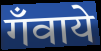
गँवाये